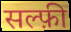
सल्फ़ी